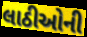
લાઠીઓની